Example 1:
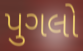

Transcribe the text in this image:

પુગલો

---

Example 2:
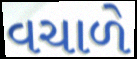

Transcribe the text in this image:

વચાળે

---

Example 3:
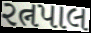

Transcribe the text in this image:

રત્નપાલ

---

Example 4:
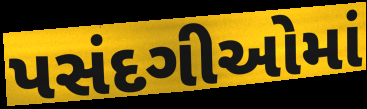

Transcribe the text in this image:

પસંદગીઓમાં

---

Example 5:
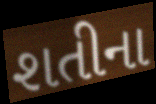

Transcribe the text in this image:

શતીના